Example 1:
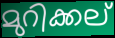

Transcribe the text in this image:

മുറിക്കല്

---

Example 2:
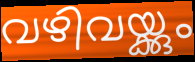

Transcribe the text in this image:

വഴിവയ്ക്കും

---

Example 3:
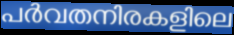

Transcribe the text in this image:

പർവതനിരകളിലെ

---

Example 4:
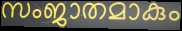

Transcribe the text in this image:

സംജാതമാകും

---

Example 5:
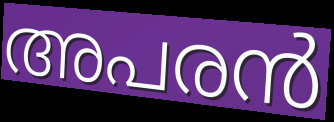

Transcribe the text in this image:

അപരൻ